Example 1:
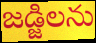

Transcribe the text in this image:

జడ్జిలను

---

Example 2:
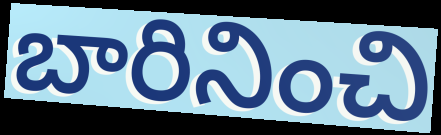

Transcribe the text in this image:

బారినించి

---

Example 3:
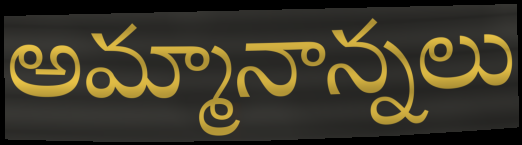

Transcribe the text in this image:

అమ్మానాన్నలు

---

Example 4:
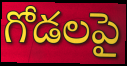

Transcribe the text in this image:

గోడలపై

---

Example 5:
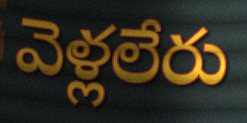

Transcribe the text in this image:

వెళ్లలేరు